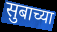
सुबाच्या